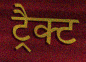
ट्रैक्ट